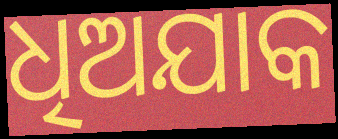
ଧିଅଯାକ